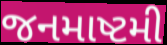
જનમાષ્ટમી